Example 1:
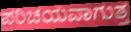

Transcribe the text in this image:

ಪರಿಚಯವಾಗುತ್ತ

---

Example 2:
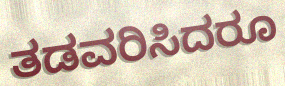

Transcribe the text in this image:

ತಡವರಿಸಿದರೂ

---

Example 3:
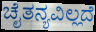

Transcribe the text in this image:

ಚೈತನ್ಯವಿಲ್ಲದೆ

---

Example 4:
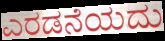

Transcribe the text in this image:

ಎರಡನೆಯದು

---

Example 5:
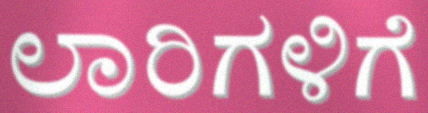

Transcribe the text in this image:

ಲಾರಿಗಳಿಗೆ